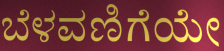
ಬೆಳವಣಿಗೆಯೇ